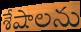
శేషాలను